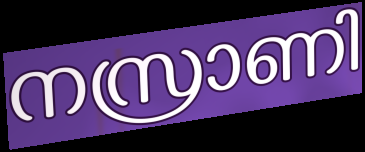
നസ്രാണി